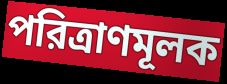
পরিত্রাণমূলক